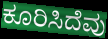
ಕೂರಿಸಿದೆವು